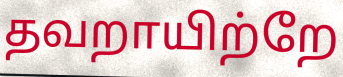
தவறாயிற்றே